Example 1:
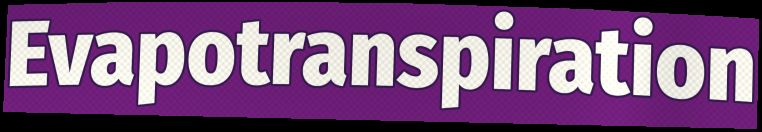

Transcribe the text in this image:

Evapotranspiration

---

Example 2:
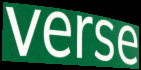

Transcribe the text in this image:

verse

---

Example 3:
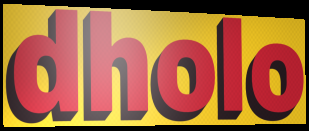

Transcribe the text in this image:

dholo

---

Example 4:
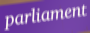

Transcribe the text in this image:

parliament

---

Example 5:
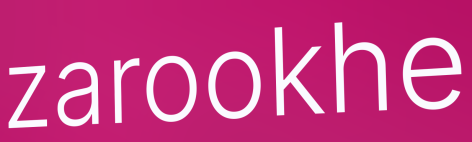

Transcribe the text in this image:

zarookhe